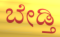
ಬೇಡ್ತಿ